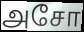
அசோ